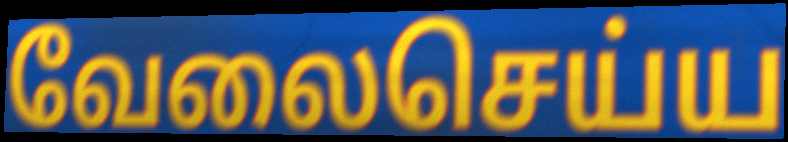
வேலைசெய்ய